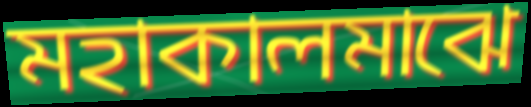
মহাকালমাঝে